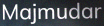
Majmudar